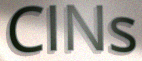
CINs